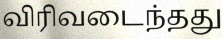
விரிவடைந்தது